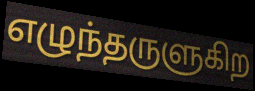
எழுந்தருளுகிற